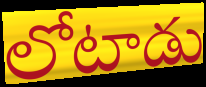
లోటాడు